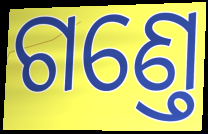
ଗଣ୍ତେ